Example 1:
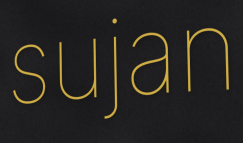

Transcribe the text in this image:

sujan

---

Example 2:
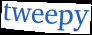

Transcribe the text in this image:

tweepy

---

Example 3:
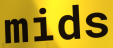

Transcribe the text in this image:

mids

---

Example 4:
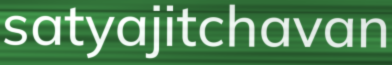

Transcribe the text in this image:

satyajitchavan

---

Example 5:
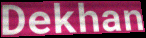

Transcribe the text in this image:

Dekhan